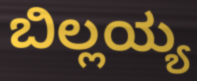
ಬಿಲ್ಲಯ್ಯ